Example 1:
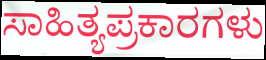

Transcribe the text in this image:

ಸಾಹಿತ್ಯಪ್ರಕಾರಗಳು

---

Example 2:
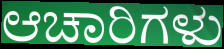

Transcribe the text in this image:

ಆಚಾರಿಗಳು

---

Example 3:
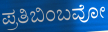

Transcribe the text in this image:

ಪ್ರತಿಬಿಂಬವೋ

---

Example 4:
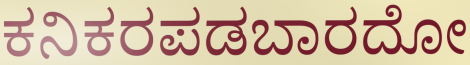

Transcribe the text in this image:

ಕನಿಕರಪಡಬಾರದೋ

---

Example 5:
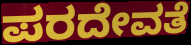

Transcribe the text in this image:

ಪರದೇವತೆ